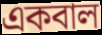
একবাল